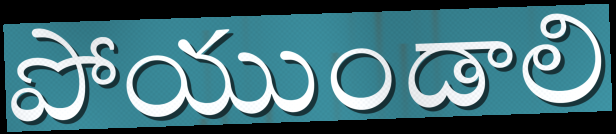
పోయుండాలి